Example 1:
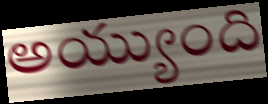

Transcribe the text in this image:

అయ్యుంది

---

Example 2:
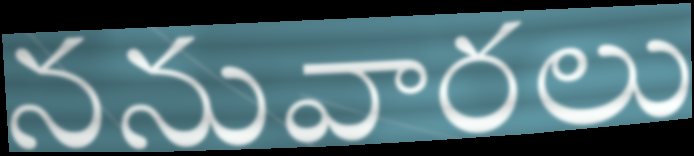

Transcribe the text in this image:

ననువారలు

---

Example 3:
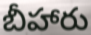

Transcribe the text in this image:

బీహారు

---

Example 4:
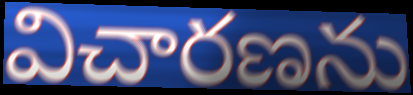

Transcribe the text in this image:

విచారణను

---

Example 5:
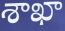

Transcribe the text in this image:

శాఖా